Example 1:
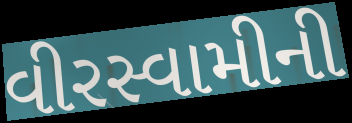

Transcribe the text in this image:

વીરસ્વામીની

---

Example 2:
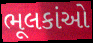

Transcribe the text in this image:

ભૂલકાંઓ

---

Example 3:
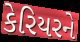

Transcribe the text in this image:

કેરિયરને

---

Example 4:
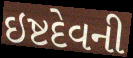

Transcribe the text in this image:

ઇષ્ટદેવની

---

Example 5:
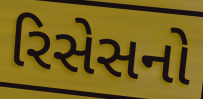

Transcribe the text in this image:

રિસેસનો